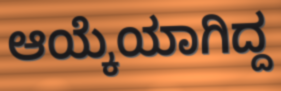
ಆಯ್ಕೆಯಾಗಿದ್ದ